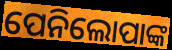
ପେନିଲୋପାଙ୍କ